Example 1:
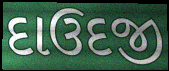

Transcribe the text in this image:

દાઉદજી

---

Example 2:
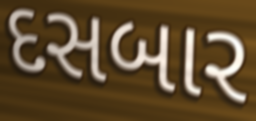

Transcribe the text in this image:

દસબાર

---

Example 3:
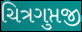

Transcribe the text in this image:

ચિત્રગુપ્તજી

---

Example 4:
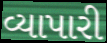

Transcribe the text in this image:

વ્યાપારી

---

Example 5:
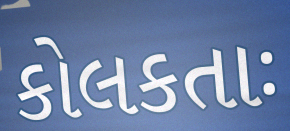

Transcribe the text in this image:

કોલકતાઃ